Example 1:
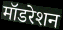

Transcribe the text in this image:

मॉडरेशन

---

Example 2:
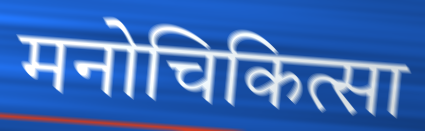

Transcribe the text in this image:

मनोचिकित्सा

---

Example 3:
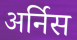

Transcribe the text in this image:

अर्निस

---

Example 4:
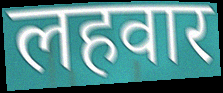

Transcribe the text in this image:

लहवार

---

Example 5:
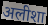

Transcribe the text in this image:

अलीशा